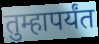
तुम्हापर्यंत